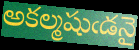
అకల్మషుఁడనై